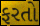
ફરતો